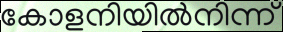
കോളനിയിൽനിന്ന്